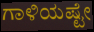
ಗಾಳಿಯಷ್ಟೇ